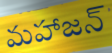
మహాజన్